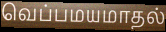
வெப்பமயமாதல்